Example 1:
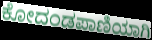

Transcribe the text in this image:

ಕೋದಂಡಪಾಣಿಯಾಗಿ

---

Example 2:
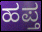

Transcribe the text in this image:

ಹಪ್ತ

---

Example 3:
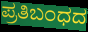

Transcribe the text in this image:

ಪ್ರತಿಬಂಧದ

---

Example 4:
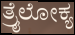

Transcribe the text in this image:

ತ್ರೈಲೋಕ್ಯ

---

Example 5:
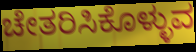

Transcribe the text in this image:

ಚೇತರಿಸಿಕೊಳ್ಳುವ